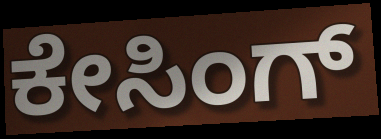
ಕೇಸಿಂಗ್